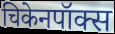
चिकेनपॉक्स